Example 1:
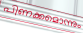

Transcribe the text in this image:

പിണക്കമൊന്നും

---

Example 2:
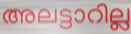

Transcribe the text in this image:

അലട്ടാറില്ല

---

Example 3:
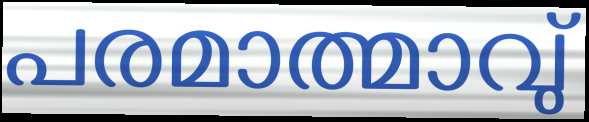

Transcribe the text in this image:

പരമാത്മാവു്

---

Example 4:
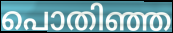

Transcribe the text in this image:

പൊതിഞ്ഞ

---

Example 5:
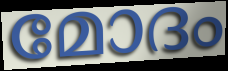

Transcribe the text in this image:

മോദം